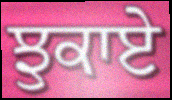
ਝੁਕਾਏ